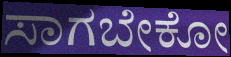
ಸಾಗಬೇಕೋ